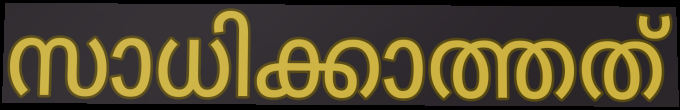
സാധിക്കാത്തത്